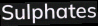
Sulphates